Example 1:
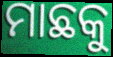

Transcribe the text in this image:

ମାଛକୁ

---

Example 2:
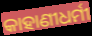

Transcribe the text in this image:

କାହାଣୀଧର୍ମୀ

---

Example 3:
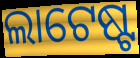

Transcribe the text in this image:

ଲାଟେଷ୍ଟ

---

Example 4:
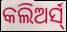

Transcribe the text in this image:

କଲିଅର୍ସ୍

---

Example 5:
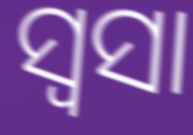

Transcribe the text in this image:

ସ୍ୱସା